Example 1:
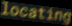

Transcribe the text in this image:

locating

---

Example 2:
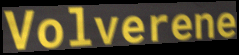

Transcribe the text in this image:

Volverene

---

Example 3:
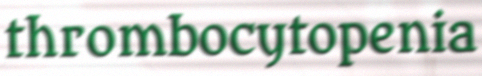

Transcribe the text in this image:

thrombocytopenia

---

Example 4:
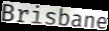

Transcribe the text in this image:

Brisbane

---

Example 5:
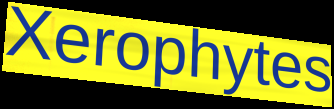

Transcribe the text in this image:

Xerophytes